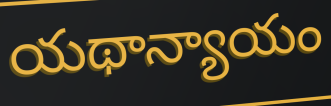
యథాన్యాయం